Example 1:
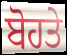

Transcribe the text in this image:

ਬੋਹਤੇ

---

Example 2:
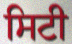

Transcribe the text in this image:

ਸਿਟੀ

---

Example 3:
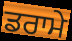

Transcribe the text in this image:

ਡਰਾਮੇ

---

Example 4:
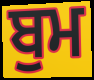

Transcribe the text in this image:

ਬੁਮ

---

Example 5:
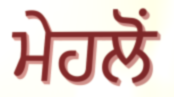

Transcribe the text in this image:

ਮੇਹਲੋਂ